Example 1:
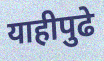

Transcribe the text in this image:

याहीपुढे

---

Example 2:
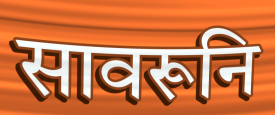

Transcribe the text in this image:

सावरूनि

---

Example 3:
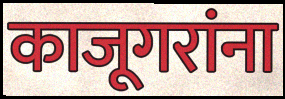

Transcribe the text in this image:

काजूगरांना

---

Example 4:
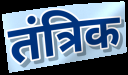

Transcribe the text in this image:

तंत्रिक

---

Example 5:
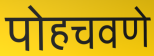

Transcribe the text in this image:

पोहचवणे